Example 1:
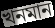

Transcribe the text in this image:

খনমান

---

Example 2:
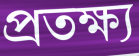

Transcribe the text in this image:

প্ৰতক্ষ্য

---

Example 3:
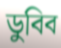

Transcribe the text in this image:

ডুবিব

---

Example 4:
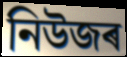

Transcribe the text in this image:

নিউজৰ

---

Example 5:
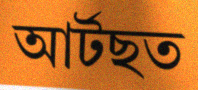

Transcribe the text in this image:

আৰ্টছত